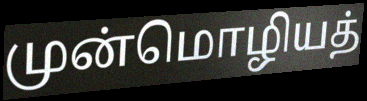
முன்மொழியத்